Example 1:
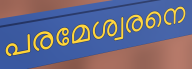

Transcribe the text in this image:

പരമേശ്വരനെ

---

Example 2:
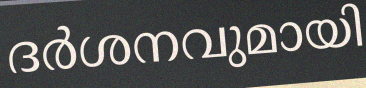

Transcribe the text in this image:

ദർശനവുമായി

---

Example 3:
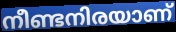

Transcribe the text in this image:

നീണ്ടനിരയാണ്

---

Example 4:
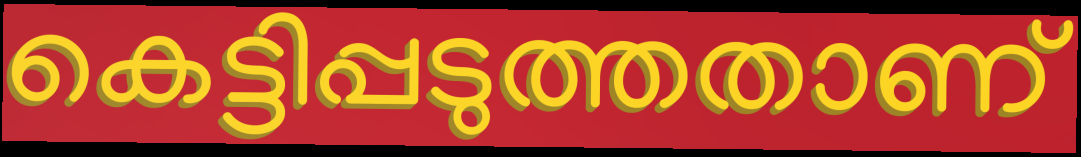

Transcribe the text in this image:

കെട്ടിപ്പടുത്തതാണ്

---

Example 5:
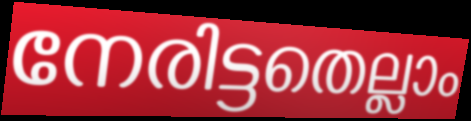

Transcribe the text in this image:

നേരിട്ടതെല്ലാം